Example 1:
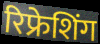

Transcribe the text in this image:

रिफ्रेशिंग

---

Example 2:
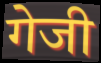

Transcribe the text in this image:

गेजी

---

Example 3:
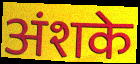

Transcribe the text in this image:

अंशके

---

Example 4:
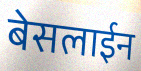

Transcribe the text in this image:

बेसलाईन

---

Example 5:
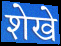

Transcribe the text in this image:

शेखे